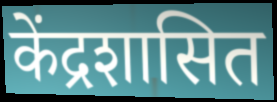
केंद्रशासित